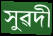
সুৱদী